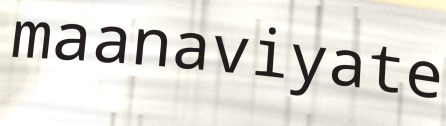
maanaviyate